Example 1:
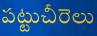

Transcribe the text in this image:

పట్టుచీరెలు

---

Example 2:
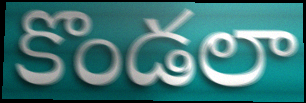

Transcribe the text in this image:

కొండలా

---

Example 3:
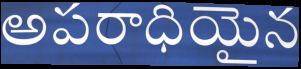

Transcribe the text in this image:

అపరాధియైన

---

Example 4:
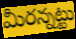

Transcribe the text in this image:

మీరన్నట్టు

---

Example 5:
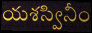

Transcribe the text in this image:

యశస్వినీం